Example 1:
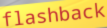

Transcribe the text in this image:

flashback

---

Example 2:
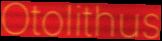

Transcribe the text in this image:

Otolithus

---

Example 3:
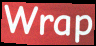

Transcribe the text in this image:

Wrap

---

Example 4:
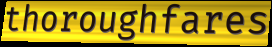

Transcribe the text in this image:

thoroughfares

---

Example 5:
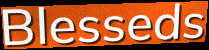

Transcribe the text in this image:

Blesseds